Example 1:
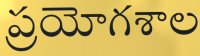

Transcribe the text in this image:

ప్రయోగశాల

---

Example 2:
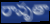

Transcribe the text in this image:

రావృతా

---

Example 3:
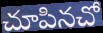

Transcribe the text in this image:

చూపినచో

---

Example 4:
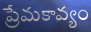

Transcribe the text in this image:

ప్రేమకావ్యం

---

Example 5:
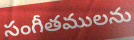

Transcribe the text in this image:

సంగీతములను